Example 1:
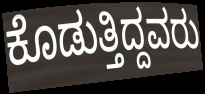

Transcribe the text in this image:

ಕೊಡುತ್ತಿದ್ದವರು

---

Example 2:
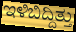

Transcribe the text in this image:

ಇಳಿಬಿದ್ದಿತ್ತು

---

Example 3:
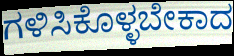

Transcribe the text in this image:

ಗಳಿಸಿಕೊಳ್ಳಬೇಕಾದ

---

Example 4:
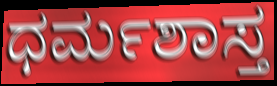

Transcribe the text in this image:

ಧರ್ಮಶಾಸ್ತ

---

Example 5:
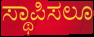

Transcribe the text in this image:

ಸ್ಥಾಪಿಸಲೂ